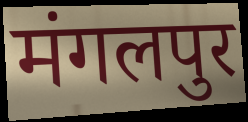
मंगलपुर